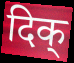
दिक्